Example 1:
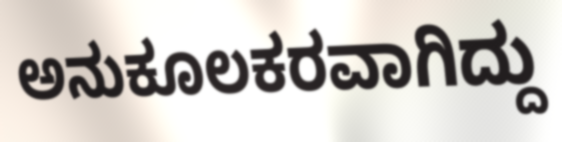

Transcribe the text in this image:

ಅನುಕೂಲಕರವಾಗಿದ್ದು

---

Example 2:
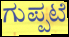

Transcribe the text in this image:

ಗುಪ್ಪಟೆ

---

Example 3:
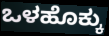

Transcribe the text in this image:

ಒಳಹೊಕ್ಕು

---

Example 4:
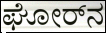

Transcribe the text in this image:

ಘೋರ್‌ನ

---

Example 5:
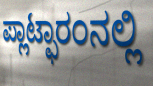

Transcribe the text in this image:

ಪ್ಲಾಟ್ಫಾರಂನಲ್ಲಿ